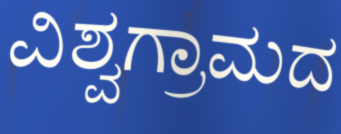
ವಿಶ್ವಗ್ರಾಮದ